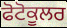
ਫੋਟੋਕੂਲਰ